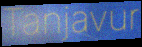
Tanjavur